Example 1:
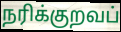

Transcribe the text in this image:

நரிக்குறவப்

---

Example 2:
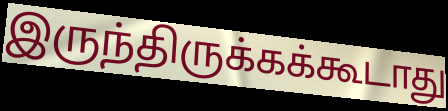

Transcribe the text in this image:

இருந்திருக்கக்கூடாது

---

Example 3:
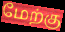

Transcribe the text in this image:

மேற்கு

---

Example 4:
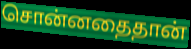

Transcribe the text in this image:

சொன்னதைதான்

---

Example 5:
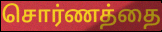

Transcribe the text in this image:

சொர்ணத்தை